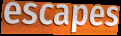
escapes